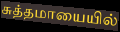
சுத்தமாயையில்